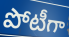
పోటీగా